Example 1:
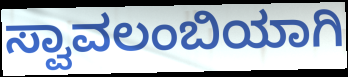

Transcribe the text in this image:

ಸ್ವಾವಲಂಬಿಯಾಗಿ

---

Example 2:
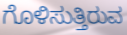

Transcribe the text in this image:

ಗೊಳಿಸುತ್ತಿರುವ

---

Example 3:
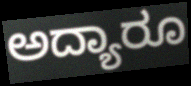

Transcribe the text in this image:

ಅದ್ಯಾರೂ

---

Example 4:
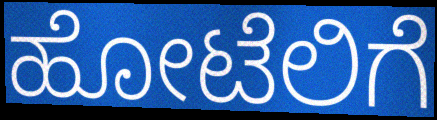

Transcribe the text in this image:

ಹೋಟೆಲಿಗೆ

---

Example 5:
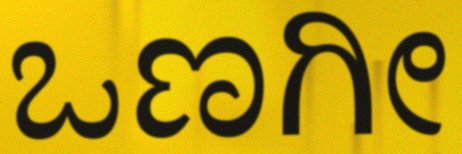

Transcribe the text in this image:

ಒಣಗೀ